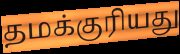
தமக்குரியது